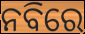
ନବିରେ